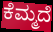
ಕೆಮ್ಮದೆ